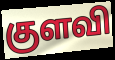
குளவி